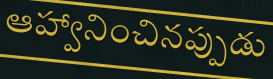
ఆహ్వానించినప్పుడు